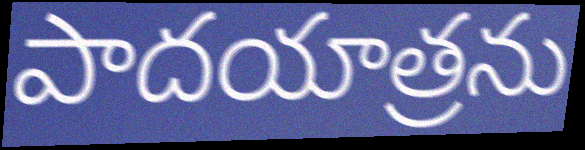
పాదయాత్రను